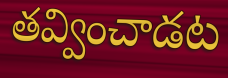
తవ్వించాడట